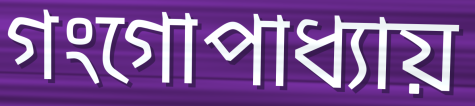
গংগোপাধ্যায়